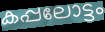
കപ്പലോട്ടം